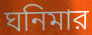
ঘনিমার